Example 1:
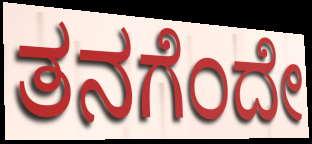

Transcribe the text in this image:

ತನಗೆಂದೇ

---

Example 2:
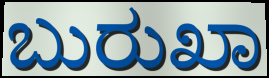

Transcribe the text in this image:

ಬುರುಖಾ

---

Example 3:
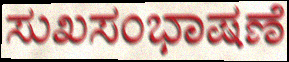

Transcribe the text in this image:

ಸುಖಸಂಭಾಷಣೆ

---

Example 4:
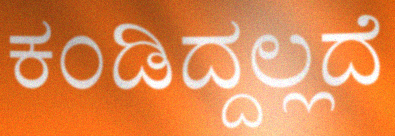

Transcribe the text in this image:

ಕಂಡಿದ್ದಲ್ಲದೆ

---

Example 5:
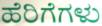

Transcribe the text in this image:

ಹೆರಿಗೆಗಳು